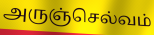
அருஞ்செல்வம்